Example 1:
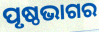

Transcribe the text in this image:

ପୃଷ୍ଠଭାଗର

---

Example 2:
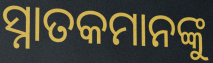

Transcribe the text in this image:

ସ୍ନାତକମାନଙ୍କୁ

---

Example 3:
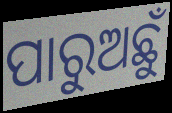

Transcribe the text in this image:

ପାରୁଅଛୁଁ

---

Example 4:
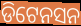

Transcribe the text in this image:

ଡିଟେନସନ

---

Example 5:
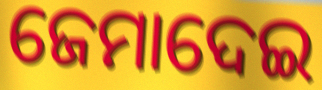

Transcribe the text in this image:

ଜେମାଦେଇ